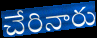
చేరినారు